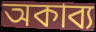
অকাব্য